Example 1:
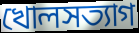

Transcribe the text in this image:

খোলসত্যাগ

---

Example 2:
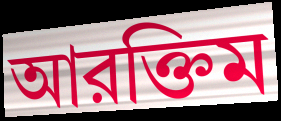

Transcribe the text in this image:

আরক্তিম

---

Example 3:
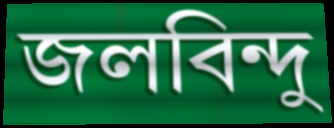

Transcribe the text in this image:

জলবিন্দু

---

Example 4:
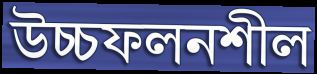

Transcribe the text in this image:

উচ্চফলনশীল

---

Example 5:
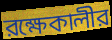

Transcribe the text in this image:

রক্ষেকালীর